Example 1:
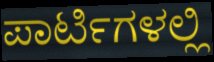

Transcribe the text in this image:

ಪಾರ್ಟಿಗಳಲ್ಲಿ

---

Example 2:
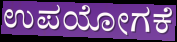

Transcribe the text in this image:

ಉಪಯೋಗಕೆ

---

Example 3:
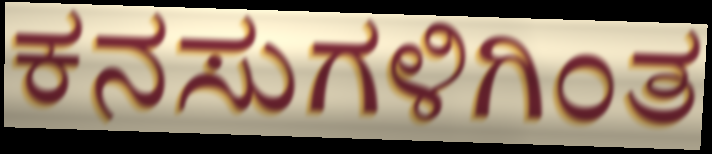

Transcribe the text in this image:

ಕನಸುಗಳಿಗಿಂತ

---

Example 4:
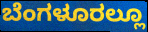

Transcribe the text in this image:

ಬೆಂಗಳೂರಲ್ಲೂ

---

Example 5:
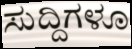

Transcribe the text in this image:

ಸುದ್ದಿಗಳೂ